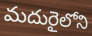
మదురైలోని